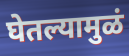
घेतल्यामुळं